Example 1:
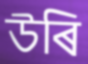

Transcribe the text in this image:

উৰি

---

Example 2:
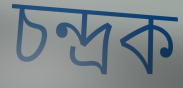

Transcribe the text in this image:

চন্দ্ৰক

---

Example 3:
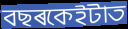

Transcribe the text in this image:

বছৰকেইটাত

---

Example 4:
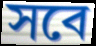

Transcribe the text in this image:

সবে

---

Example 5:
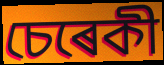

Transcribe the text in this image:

চেৰেকী